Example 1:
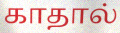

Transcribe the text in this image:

காதால்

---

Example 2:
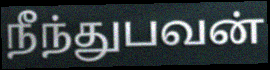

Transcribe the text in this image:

நீந்துபவன்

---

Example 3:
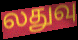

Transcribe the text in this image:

லதுவு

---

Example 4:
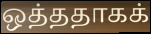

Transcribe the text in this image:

ஒத்ததாகக்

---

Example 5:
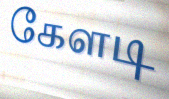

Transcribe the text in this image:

கேளடி